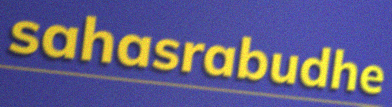
sahasrabudhe